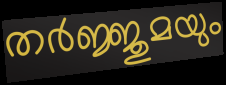
തർജ്ജുമയും